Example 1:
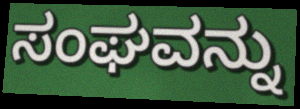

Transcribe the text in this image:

ಸಂಘವನ್ನು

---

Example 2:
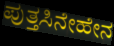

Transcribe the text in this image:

ಪುತ್ತಸಿನೇಹೇನ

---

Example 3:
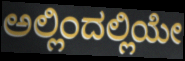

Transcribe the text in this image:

ಅಲ್ಲಿಂದಲ್ಲಿಯೇ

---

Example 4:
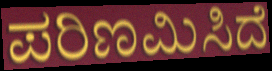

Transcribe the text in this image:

ಪರಿಣಮಿಸಿದೆ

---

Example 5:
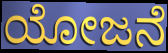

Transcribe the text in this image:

ಯೋಜನೆ